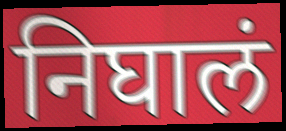
निघालं